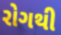
રોગથી